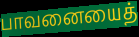
பாவனையைத்